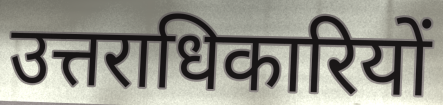
उत्तराधिकारियों